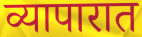
व्यापारात